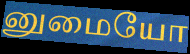
னுமையோ